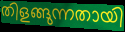
തിളങ്ങുന്നതായി